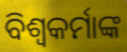
ବିଶ୍ୱକର୍ମାଙ୍କ